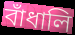
বাঁধালি